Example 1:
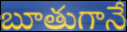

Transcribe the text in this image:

బూతుగానే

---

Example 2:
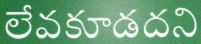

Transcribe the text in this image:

లేవకూడదని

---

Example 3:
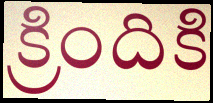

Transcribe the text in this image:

క్రిందికి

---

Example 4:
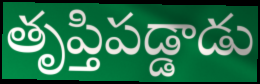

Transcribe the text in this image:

తృప్తిపడ్డాడు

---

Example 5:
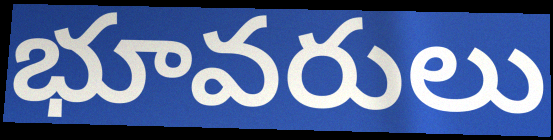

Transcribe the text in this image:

భూవరులు